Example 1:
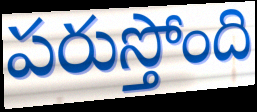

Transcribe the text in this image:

పరుస్తోంది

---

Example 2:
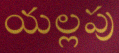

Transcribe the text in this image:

యల్లపు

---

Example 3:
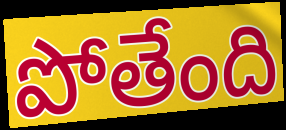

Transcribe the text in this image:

పోతేంది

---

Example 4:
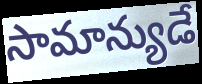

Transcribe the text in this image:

సామాన్యుడే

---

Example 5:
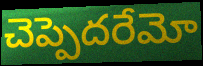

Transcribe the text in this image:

చెప్పెదరేమో